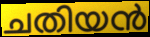
ചതിയൻ